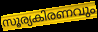
സൂര്യകിരണവും